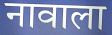
नावाला